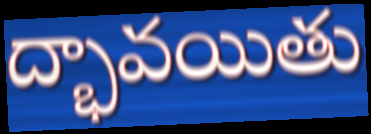
ద్భావయితు